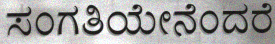
ಸಂಗತಿಯೇನೆಂದರೆ